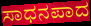
ಸಾಧನಪಾದ